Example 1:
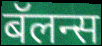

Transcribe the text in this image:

बॅलन्स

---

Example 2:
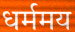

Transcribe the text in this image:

धर्ममय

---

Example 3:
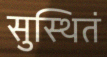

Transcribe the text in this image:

सुस्थितं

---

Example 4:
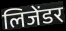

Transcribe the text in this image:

लिजेंडर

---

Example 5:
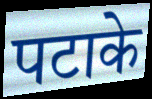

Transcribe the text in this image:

पटाके